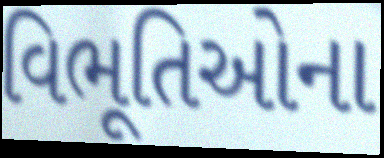
વિભૂતિઓના